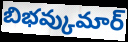
బిభవ్కుమార్